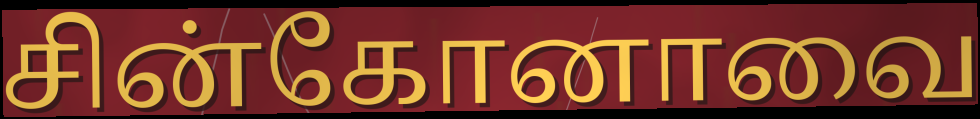
சின்கோனாவை